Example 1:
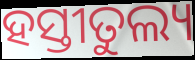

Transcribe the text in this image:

ହସ୍ତୀତୁଲ୍ୟ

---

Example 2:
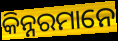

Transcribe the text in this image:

କିନ୍ନରମାନେ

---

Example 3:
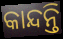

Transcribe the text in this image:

କାନ୍ଦନ୍ତି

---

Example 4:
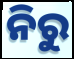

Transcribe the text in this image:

ନିରୁ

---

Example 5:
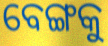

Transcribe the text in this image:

ବେଙ୍ଗକୁ